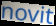
novit